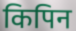
किपिन